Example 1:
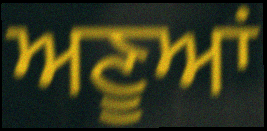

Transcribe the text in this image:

ਅਣੂਆਂ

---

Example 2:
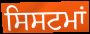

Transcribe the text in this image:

ਸਿਸਟਮਾਂ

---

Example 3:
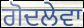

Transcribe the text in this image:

ਗੋਦਲੇਵਾ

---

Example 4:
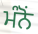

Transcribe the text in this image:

ਮੰਨੋਂ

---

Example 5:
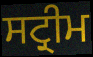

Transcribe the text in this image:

ਸਟ੍ਰੀਮ